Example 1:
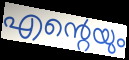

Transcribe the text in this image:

എന്റെയും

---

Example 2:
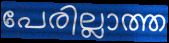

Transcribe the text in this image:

പേരില്ലാത്ത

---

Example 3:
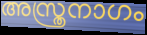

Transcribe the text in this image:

അസ്ത്രനാഗം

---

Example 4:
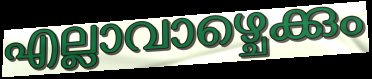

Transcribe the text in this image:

എല്ലാവാഴ്ചെക്കും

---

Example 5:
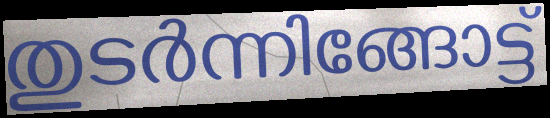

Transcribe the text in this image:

തുടർന്നിങ്ങോട്ട്